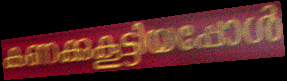
കണക്കുകൂട്ടിയപ്പോൾ